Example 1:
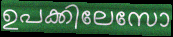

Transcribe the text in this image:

ഉപക്കിലേസോ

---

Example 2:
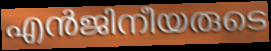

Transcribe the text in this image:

എൻജിനീയരുടെ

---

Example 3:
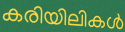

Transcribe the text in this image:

കരിയിലികൾ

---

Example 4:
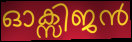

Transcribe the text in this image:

ഓക്സിജൻ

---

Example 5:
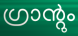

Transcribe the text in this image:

ഗ്രാന്റും